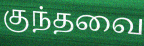
குந்தவை